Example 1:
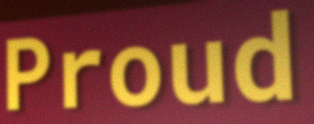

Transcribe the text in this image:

Proud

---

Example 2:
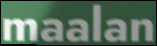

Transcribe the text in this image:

maalan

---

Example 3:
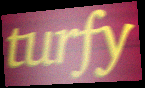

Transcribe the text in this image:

turfy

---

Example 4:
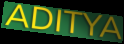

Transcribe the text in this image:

ADITYA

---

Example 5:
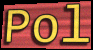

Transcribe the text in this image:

Pol